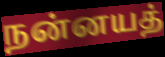
நன்னயத்